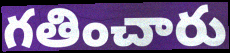
గతించారు